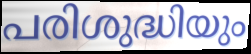
പരിശുദ്ധിയും